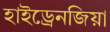
হাইড্রেনজিয়া